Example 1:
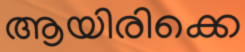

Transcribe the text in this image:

ആയിരിക്കെ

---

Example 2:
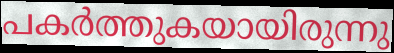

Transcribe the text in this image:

പകർത്തുകയായിരുന്നു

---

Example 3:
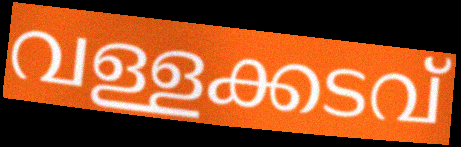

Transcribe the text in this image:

വള്ളക്കടവ്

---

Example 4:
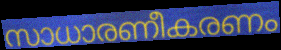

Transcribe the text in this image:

സാധാരണീകരണം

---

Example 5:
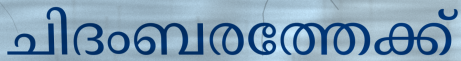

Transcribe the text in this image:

ചിദംബരത്തേക്ക്